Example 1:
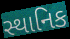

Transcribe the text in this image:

સ્થાનિક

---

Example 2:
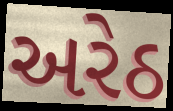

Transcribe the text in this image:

અરેઠ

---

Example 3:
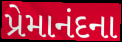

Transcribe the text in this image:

પ્રેમાનંદના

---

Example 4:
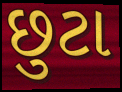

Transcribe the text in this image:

છુટા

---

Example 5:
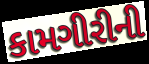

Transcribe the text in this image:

કામગીરીની